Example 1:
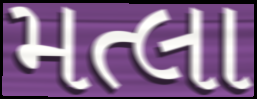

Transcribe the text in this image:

મત્લા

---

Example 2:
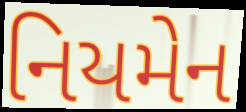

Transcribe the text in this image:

નિયમેન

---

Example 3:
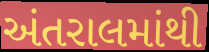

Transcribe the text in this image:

અંતરાલમાંથી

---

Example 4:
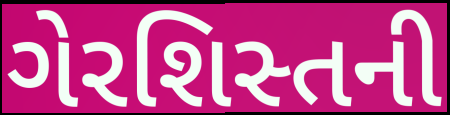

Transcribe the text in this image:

ગેરશિસ્તની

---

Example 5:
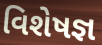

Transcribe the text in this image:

વિશેષજ્ઞ